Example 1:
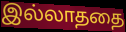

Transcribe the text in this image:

இல்லாததை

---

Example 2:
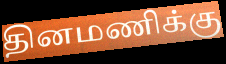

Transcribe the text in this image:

தினமணிக்கு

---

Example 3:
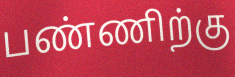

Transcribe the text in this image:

பண்ணிற்கு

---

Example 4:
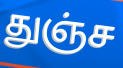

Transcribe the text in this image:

துஞ்ச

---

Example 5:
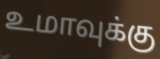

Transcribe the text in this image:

உமாவுக்கு